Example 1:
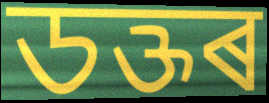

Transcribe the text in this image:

ডক্তৰ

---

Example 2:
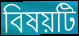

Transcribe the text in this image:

বিষয়টি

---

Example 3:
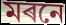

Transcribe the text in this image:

মৰনে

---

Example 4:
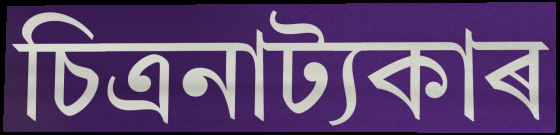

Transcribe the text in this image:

চিত্ৰনাট্যকাৰ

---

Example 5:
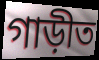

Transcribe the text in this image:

গাড়ীত